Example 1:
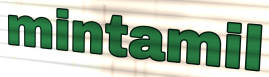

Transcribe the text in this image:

mintamil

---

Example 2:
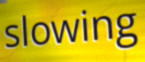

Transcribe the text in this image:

slowing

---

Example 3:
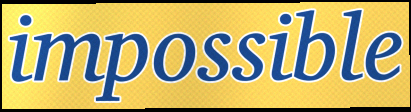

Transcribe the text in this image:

impossible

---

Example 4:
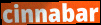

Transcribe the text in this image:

cinnabar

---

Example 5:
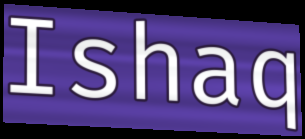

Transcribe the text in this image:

Ishaq